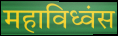
महाविध्वंस